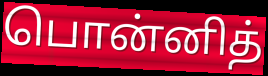
பொன்னித்